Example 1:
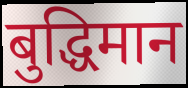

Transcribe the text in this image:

बुद्धिमान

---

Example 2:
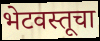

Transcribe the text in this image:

भेटवस्तूचा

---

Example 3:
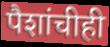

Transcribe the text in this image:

पैशांचीही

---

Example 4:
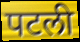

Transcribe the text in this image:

पटली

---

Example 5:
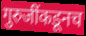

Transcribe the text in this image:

गुरुजींकडूनच